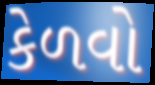
કેળવો